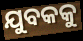
ଯୁବକକୁ